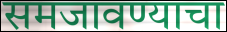
समजावण्याचा